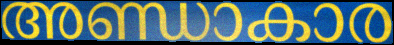
അണ്ഡാകാര